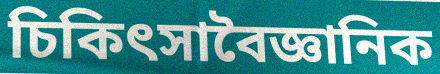
চিকিৎসাবৈজ্ঞানিক